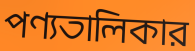
পণ্যতালিকার